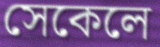
সেকেলে